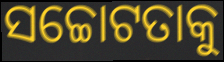
ସଚ୍ଚୋଟତାକୁ